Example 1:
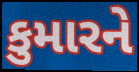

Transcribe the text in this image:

કુમારને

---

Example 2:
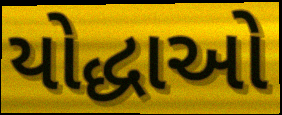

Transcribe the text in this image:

યોદ્ધાઓ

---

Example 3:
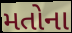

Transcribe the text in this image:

મતોના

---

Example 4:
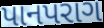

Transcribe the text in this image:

પાનપરાગ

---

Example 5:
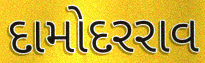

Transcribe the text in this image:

દામોદરરાવ